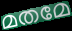
മതമേ